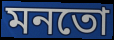
মনতো